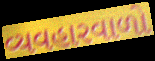
વ્યવહારવાળો